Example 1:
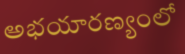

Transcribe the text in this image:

అభయారణ్యంలో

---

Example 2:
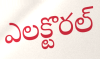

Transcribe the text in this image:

ఎలక్టొరల్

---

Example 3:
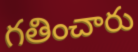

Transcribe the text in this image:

గతించారు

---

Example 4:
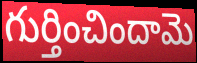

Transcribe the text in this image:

గుర్తించిందామె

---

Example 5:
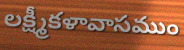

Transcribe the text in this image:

లక్ష్మీకళావాసముం